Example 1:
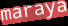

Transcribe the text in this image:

maraya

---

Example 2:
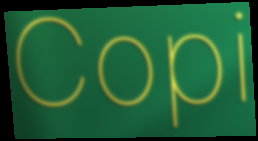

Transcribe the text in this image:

Copi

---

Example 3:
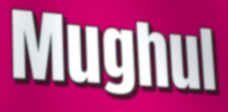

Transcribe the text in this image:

Mughul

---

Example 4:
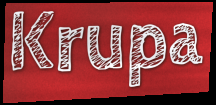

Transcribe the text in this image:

Krupa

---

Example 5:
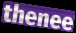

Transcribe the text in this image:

thenee